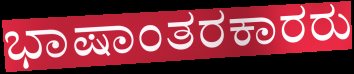
ಭಾಷಾಂತರಕಾರರು